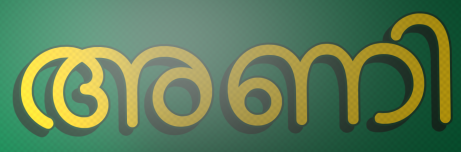
അണി